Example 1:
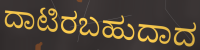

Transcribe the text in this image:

ದಾಟಿರಬಹುದಾದ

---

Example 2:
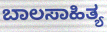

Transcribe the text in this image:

ಬಾಲಸಾಹಿತ್ಯ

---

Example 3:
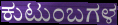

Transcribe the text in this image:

ಕುಟುಂಬಗಳ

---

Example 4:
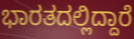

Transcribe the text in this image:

ಭಾರತದಲ್ಲಿದ್ದಾರೆ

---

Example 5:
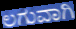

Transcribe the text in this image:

ಲಗುವಾಗಿ